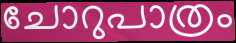
ചോറുപാത്രം